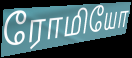
ரோமியோ